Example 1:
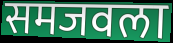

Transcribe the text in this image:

समजवला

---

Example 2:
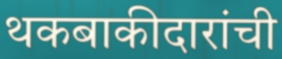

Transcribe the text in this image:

थकबाकीदारांची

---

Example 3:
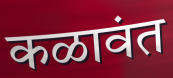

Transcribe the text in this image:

कळावंत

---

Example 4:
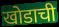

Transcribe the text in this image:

खोडाची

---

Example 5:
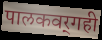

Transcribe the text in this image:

पालकवर्गही